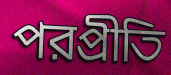
পরপ্রীতি